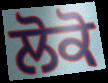
ਲੋਕੋ